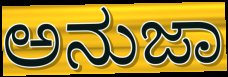
ಅನುಜಾ